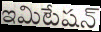
ఇమిటేషన్